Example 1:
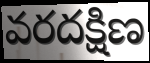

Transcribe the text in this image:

వరదక్షిణ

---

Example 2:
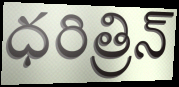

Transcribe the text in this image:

ధరిత్రిన్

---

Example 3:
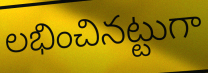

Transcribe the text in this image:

లభించినట్టుగా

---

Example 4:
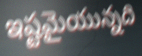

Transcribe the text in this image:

ఇష్టమైయున్నది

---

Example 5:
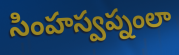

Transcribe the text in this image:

సింహస్వప్నంలా